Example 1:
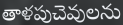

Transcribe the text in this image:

తాళపుచెవులను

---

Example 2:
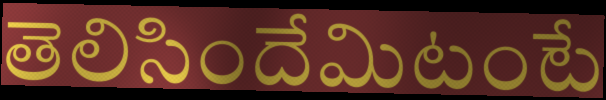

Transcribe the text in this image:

తెలిసిందేమిటంటే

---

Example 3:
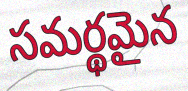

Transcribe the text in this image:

సమర్థమైన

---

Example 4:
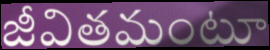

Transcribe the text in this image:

జీవితమంటూ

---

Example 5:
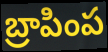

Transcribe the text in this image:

బ్రాపింప